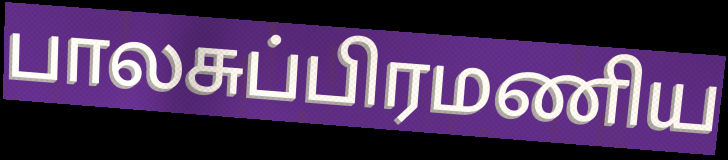
பாலசுப்பிரமணிய